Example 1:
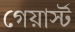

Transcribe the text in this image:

গেয়ার্স্ট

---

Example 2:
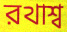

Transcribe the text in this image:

রথাশ্ব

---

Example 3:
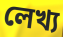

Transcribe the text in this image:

লেখ্য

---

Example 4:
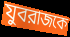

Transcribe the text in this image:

যুবরাজকে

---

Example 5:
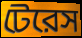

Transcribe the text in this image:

টেরেস